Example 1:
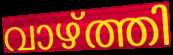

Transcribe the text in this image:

വാഴ്ത്തി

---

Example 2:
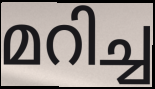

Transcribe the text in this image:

മറിച്ച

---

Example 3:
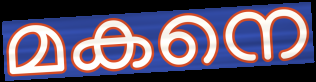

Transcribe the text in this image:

മകനെ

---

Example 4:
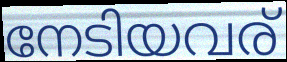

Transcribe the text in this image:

നേടിയവര്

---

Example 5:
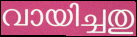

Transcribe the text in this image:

വായിച്ചതു